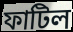
ফাটিল